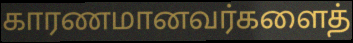
காரணமானவர்களைத்